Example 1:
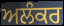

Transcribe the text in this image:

ਅਲੰਕਰ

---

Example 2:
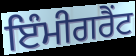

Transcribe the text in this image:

ਇੰਮੀਗਰੈਂਟ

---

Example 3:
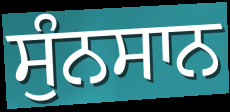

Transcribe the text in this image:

ਸੁੰਨਸਾਨ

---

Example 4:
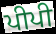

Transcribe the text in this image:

ਪੀਪੀ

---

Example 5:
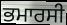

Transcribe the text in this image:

ਭਮਾਰਸੀ